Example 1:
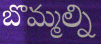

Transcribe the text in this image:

బొమ్మల్ని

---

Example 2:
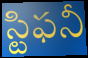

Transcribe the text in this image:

స్టిఫనీ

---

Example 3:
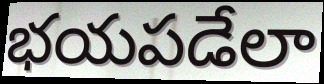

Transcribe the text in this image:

భయపడేలా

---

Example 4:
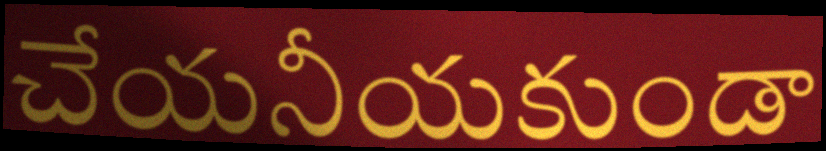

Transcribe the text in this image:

చేయనీయకుండా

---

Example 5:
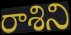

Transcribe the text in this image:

రాశిని